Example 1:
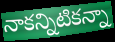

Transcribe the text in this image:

నాకన్నిటికన్నా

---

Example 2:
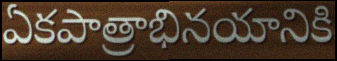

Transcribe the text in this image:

ఏకపాత్రాభినయానికి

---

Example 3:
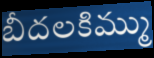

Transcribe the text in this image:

బీదలకిమ్ము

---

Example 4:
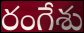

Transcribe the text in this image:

రంగేశు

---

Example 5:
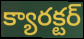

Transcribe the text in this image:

క్యారక్టర్